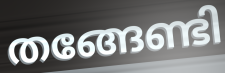
തങ്ങേണ്ടി